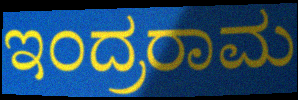
ಇಂದ್ರರಾಮ